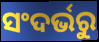
ସଂଦର୍ଭରୁ